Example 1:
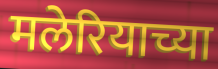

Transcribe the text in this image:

मलेरियाच्या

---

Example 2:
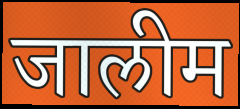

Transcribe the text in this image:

जालीम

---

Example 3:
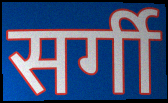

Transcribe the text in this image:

सर्गी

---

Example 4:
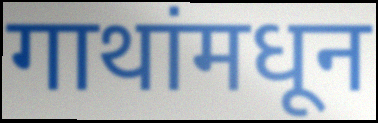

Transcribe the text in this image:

गाथांमधून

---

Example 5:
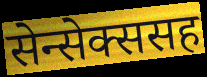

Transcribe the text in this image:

सेन्सेक्ससह